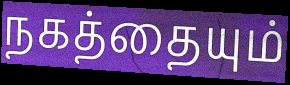
நகத்தையும்